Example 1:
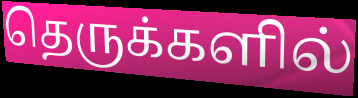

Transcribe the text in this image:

தெருக்களில்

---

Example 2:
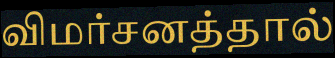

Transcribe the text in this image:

விமர்சனத்தால்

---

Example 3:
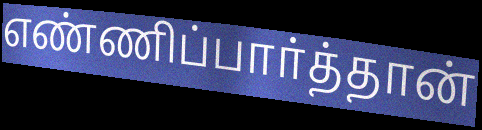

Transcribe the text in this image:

எண்ணிப்பார்த்தான்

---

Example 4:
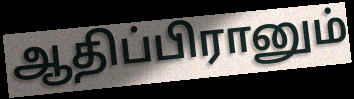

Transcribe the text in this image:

ஆதிப்பிரானும்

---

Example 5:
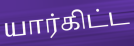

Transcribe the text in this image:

யார்கிட்ட